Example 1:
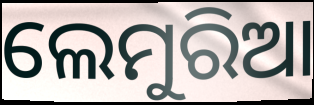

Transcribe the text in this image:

ଲେମୁରିଆ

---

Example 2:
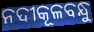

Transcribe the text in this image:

ନଦୀକୂଳବନ୍ଧୁ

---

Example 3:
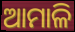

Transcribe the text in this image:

ଆମାଳି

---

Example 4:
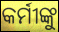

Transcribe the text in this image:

କର୍ମୀଙ୍କୁ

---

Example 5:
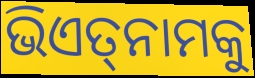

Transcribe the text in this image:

ଭିଏତ୍‌ନାମକୁ